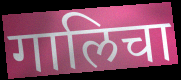
गालिचा